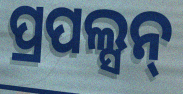
ପ୍ରପଲ୍ସନ୍